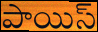
పాయిస్